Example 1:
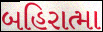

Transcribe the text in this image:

બહિરાત્મા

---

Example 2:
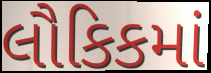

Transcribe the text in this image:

લૌકિકમાં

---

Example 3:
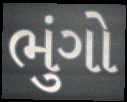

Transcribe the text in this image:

ભુંગો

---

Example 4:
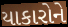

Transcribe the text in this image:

યાકારોને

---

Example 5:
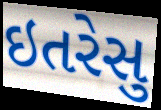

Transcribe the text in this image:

ઇતરેસુ